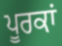
ਪੂਰਕਾਂ